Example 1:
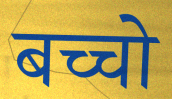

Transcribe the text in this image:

बच्चो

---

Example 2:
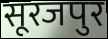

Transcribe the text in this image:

सूरजपुर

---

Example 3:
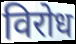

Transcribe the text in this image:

विरोध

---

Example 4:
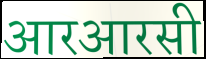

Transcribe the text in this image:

आरआरसी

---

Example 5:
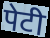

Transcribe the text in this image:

पेटी